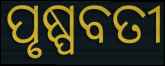
ପୃଷ୍ପବତୀ